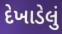
દેખાડેલું